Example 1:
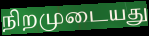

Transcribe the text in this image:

நிறமுடையது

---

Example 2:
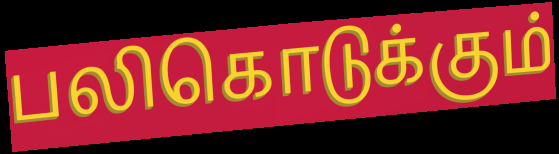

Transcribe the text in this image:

பலிகொடுக்கும்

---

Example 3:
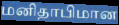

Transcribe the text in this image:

மனிதாபிமான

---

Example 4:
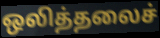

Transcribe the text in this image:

ஒலித்தலைச்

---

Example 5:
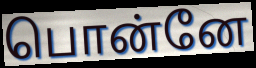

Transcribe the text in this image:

பொன்னே